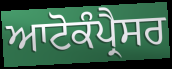
ਆਟੋਕੰਪ੍ਰੈਸਰ